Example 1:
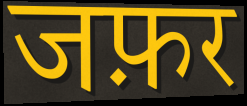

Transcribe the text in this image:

जफ़र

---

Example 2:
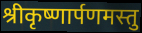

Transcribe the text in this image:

श्रीकृष्णार्पणमस्तु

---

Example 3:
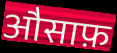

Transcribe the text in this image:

औसाफ़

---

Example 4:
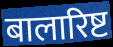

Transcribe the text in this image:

बालारिष्ट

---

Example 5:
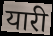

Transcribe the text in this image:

यारी